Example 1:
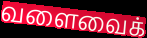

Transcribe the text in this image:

வளைவைக்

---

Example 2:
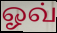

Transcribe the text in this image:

ஓவ்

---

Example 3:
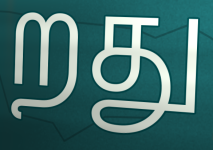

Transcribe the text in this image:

றது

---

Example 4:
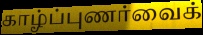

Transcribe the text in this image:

காழ்ப்புணர்வைக்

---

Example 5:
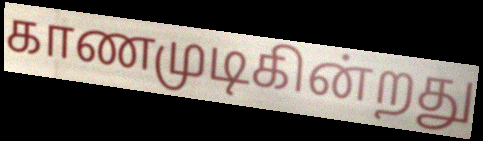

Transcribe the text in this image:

காணமுடிகின்றது